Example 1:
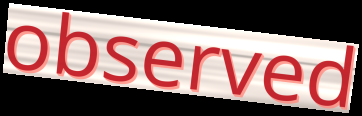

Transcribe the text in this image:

observed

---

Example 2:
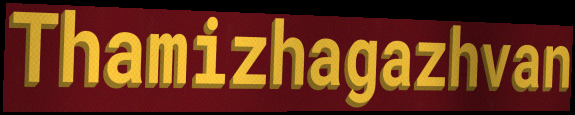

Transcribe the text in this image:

Thamizhagazhvan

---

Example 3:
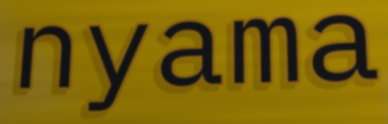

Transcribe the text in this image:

nyama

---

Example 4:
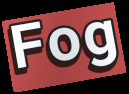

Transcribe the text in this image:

Fog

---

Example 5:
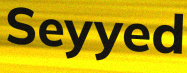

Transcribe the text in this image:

Seyyed